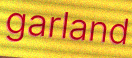
garland